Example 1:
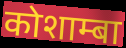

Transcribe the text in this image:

कोशाम्बा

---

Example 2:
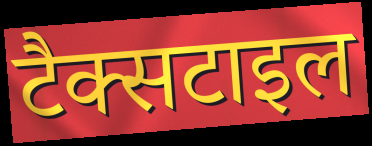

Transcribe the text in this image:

टैक्सटाइल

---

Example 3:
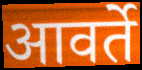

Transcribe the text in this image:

आवर्ते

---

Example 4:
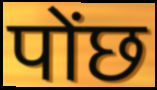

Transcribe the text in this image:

पोंछ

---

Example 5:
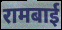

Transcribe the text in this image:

रामबाई